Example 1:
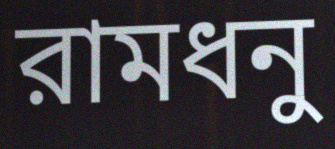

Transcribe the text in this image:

রামধনু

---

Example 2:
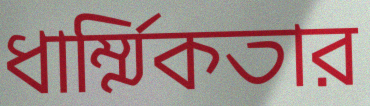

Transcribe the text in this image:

ধার্ম্মিকতার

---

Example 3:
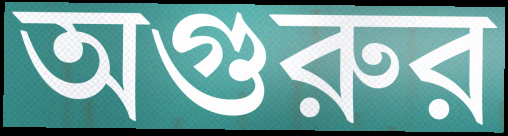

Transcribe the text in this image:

অগুরুর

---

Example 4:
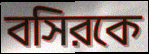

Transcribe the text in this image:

বসিরকে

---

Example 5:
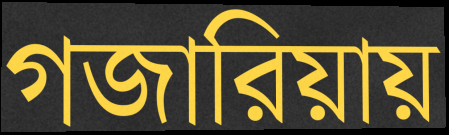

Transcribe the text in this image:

গজারিয়ায়